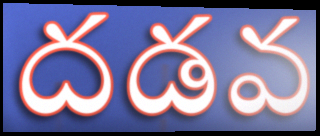
దడవ